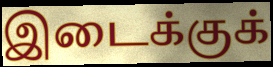
இடைக்குக்